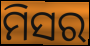
ମିସର